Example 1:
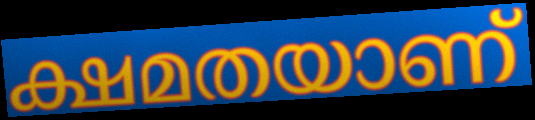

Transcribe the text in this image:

ക്ഷമതയാണ്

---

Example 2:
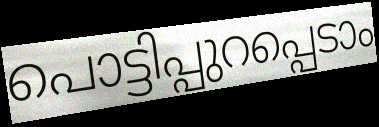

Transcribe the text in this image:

പൊട്ടിപ്പുറപ്പെടാം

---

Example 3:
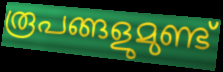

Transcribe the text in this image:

രൂപങ്ങളുമുണ്ട്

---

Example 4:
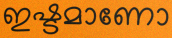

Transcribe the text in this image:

ഇഷ്ടമാണോ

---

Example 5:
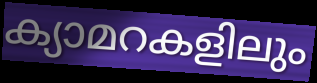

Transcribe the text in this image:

ക്യാമറകളിലും